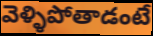
వెళ్ళిపోతాడంటే